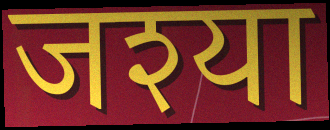
जश्या